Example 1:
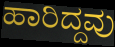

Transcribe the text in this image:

ಹಾರಿದ್ದವು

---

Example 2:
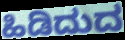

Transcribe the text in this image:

ಹಿಡಿದುದ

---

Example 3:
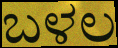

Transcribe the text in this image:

ಬಳಲ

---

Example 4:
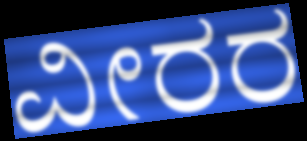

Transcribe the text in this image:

ವೀರರ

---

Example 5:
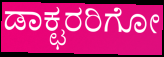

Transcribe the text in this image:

ಡಾಕ್ಟರರಿಗೋ